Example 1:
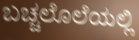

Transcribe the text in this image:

ಬಚ್ಚಲೊಲೆಯಲ್ಲಿ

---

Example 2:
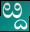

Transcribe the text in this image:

ೞ್ದ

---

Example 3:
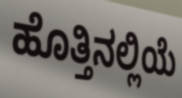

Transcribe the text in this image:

ಹೊತ್ತಿನಲ್ಲಿಯೆ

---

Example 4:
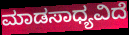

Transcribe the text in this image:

ಮಾಡಸಾಧ್ಯವಿದೆ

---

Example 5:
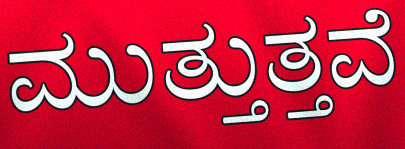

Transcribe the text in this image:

ಮುತ್ತುತ್ತವೆ